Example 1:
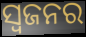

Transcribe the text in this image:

ସ୍ୱଜନର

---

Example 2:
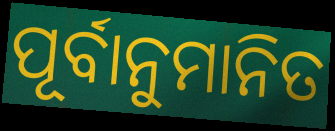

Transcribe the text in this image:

ପୂର୍ବାନୁମାନିତ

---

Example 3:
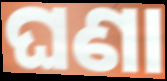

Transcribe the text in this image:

ଘଣା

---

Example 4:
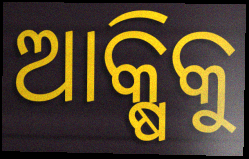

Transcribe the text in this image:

ଆକ୍ଷିକୁ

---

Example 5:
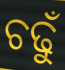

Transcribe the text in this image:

ଚଢୁଁ